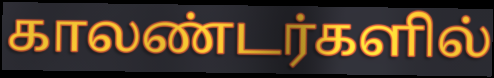
காலண்டர்களில்